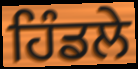
ਹਿੰਡਲੇ